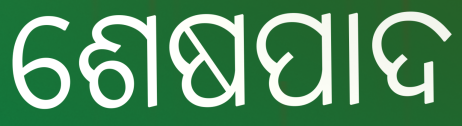
ଶେଷପାଦ